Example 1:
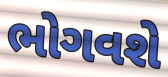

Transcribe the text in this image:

ભોગવશે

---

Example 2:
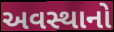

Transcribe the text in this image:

અવસ્થાનો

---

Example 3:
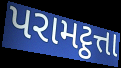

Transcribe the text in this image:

પરામટ્ઠત્તા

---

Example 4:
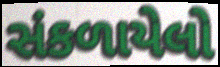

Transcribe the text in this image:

સંકળાયેલો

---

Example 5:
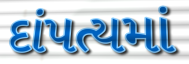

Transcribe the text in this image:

દાંપત્યમાં